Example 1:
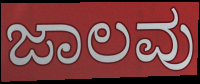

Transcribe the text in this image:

ಜಾಲವು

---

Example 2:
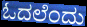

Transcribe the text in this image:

ಓದಲೆಂದು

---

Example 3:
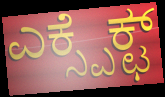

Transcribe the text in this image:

ಎಕ್ಸ್ಪೆಕ್ಟ್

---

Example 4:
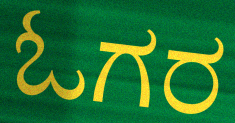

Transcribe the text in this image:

ಓಗರ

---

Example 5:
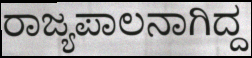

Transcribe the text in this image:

ರಾಜ್ಯಪಾಲನಾಗಿದ್ದ